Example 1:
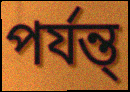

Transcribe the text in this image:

পর্যন্ত্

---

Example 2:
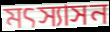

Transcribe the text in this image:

মৎস্যাসন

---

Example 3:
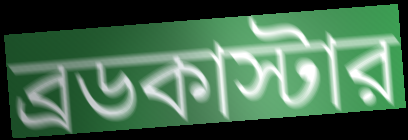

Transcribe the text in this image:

ব্রডকাস্টার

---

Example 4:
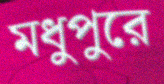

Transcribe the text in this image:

মধুপুরে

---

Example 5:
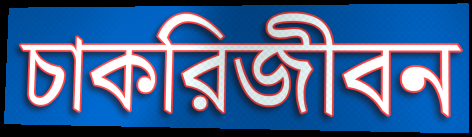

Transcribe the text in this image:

চাকরিজীবন